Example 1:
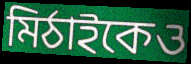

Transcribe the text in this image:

মিঠাইকেও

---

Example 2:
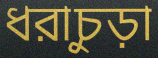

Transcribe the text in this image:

ধরাচুড়া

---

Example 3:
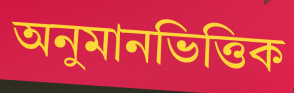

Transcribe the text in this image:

অনুমানভিত্তিক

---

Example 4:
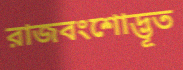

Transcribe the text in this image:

রাজবংশোদ্ভূত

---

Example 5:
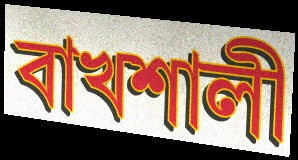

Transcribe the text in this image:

বাখশালী